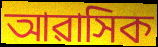
আৱাসিক